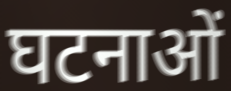
घटनाओं